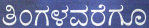
ತಿಂಗಳವರೆಗೂ